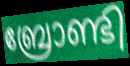
ബ്രോണ്ടി